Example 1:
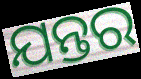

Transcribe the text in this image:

ଯନ୍ତର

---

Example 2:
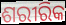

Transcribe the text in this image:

ଶରୀରିକ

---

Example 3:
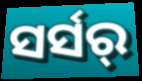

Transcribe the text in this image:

ସର୍ସର୍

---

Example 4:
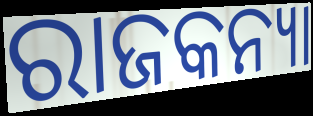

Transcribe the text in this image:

ରାଜକନ୍ୟା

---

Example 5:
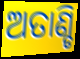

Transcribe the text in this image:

ଅତାଣ୍ଡି